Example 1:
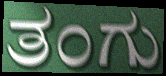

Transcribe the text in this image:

ತಂಗು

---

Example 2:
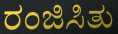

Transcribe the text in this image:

ರಂಜಿಸಿತು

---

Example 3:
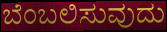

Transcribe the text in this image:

ಬೆಂಬಲಿಸುವುದು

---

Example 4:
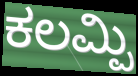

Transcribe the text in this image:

ಕಲಮ್ಪಿ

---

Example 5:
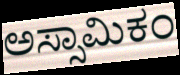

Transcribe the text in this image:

ಅಸ್ಸಾಮಿಕಂ